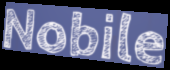
Nobile